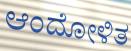
ಆಂದೋಳಿತ